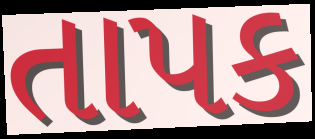
તાપક